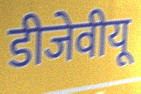
डीजेवीयू